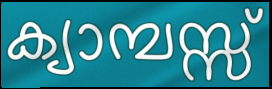
ക്യാമ്പസ്സ്